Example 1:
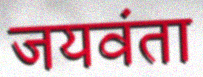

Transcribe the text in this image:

जयवंता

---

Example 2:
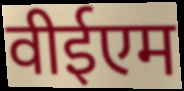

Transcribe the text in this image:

वीईएम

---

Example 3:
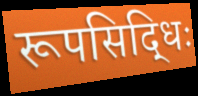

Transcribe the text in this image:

रूपसिद्धिः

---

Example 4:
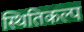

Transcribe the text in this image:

स्थितिकल्प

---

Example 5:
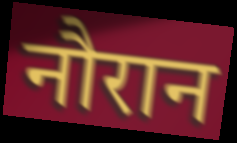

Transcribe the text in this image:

नौरान